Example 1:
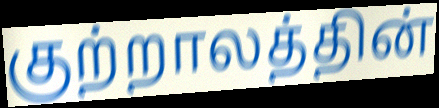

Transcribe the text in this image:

குற்றாலத்தின்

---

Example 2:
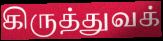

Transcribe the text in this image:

கிருத்துவக்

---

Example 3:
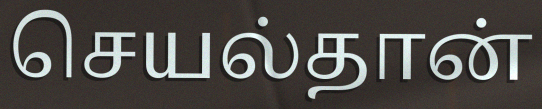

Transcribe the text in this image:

செயல்தான்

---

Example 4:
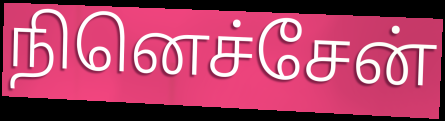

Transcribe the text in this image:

நினெச்சேன்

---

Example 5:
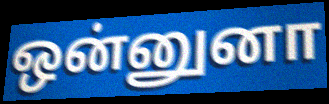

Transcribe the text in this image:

ஒன்னுனா